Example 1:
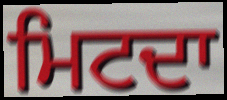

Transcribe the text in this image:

ਮਿਟਦਾ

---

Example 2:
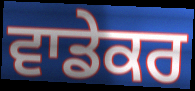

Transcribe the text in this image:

ਵਾਡੇਕਰ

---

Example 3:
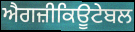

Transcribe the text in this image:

ਐਗਜ਼ੀਕਿਊਟੇਬਲ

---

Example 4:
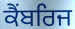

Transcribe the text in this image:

ਕੈਂਬਰਿਜ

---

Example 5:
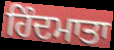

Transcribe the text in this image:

ਹਿੰਦਮਾਤਾ